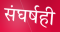
संघर्षही